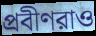
প্রবীণরাও